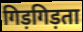
गिड़गिड़ता